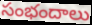
సంభందాలు